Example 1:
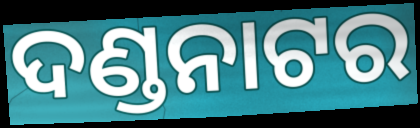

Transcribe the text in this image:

ଦଣ୍ଡନାଟର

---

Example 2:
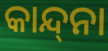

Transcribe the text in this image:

କାନ୍ଦ୍‌ନା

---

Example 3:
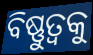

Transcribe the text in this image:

ବିଷ୍ଣୁତ୍ୱକୁ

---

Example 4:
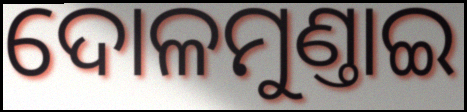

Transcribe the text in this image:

ଦୋଳମୁଣ୍ତାଇ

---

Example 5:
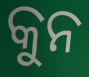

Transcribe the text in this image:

କୁନ